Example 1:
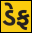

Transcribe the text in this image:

ડેફ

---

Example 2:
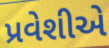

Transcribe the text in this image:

પ્રવેશીએ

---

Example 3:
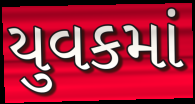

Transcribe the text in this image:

યુવકમાં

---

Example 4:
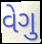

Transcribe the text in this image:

વેગુ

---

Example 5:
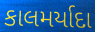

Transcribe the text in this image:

કાલમર્યાદા